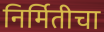
निर्मितीचा